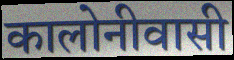
कालोनीवासी